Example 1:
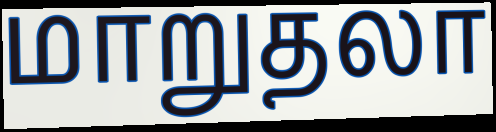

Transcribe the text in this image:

மாறுதலா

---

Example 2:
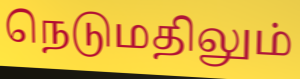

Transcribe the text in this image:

நெடுமதிலும்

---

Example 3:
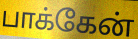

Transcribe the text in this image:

பாக்கேன்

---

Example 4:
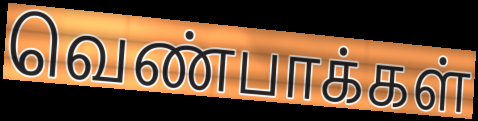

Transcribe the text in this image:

வெண்பாக்கள்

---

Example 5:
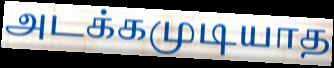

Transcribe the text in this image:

அடக்கமுடியாத